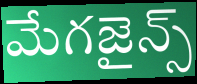
మేగజైన్స్